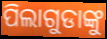
ପିଲାଗୁଡାଙ୍କୁ